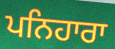
ਪਨਿਹਾਰਾ